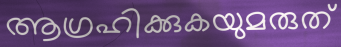
ആഗ്രഹിക്കുകയുമരുത്